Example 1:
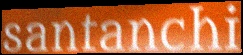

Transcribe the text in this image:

santanchi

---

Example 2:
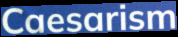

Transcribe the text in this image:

Caesarism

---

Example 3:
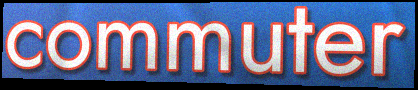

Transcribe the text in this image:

commuter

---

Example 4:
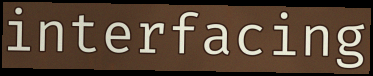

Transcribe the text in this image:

interfacing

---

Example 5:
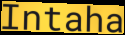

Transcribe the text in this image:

Intaha